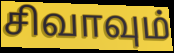
சிவாவும்